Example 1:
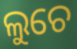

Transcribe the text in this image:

ଲୁଚେ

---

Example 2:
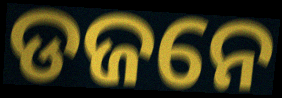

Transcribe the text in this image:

ଡଜନେ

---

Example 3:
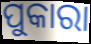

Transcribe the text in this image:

ପୁକାରା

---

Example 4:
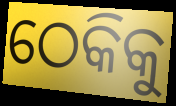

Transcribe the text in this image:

ଠେକିକୁ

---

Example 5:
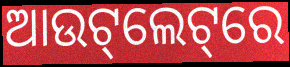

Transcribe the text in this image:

ଆଉଟ୍‌ଲେଟ୍‌ରେ